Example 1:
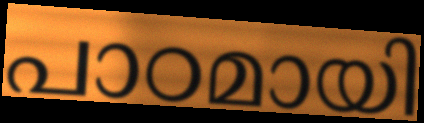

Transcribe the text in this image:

പാഠമായി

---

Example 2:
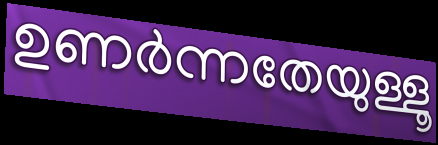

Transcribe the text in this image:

ഉണർന്നതേയുള്ളൂ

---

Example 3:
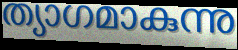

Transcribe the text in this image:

ത്യാഗമാകുന്നു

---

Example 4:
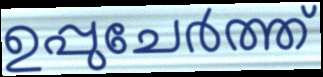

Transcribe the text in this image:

ഉപ്പുചേർത്ത്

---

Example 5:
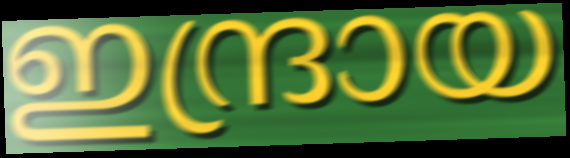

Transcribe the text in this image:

ഇന്ദ്രായ